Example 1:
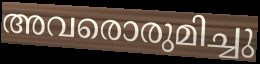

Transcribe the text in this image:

അവരൊരുമിച്ചു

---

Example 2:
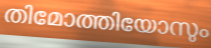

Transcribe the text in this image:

തിമോത്തിയോസും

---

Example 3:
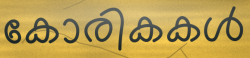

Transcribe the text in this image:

കോരികകൾ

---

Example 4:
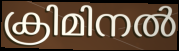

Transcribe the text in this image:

ക്രിമിനൽ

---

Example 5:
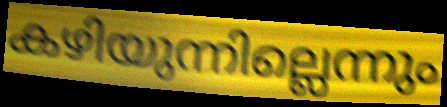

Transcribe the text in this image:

കഴിയുന്നില്ലെന്നും